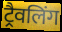
ट्रैवलिंग